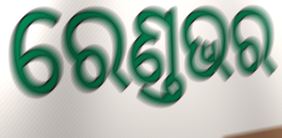
ରେଣ୍ଡଭର